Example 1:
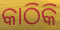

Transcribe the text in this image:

କାଠିକି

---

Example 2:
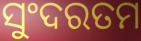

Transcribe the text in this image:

ସୁଂଦରତମ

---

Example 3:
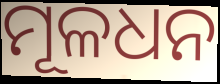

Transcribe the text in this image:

ମୂଳଧନ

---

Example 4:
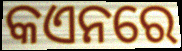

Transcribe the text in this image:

କଏନରେ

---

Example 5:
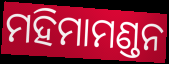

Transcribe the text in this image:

ମହିମାମଣ୍ଡନ